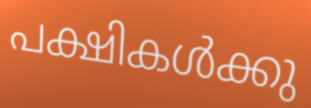
പക്ഷികൾക്കു